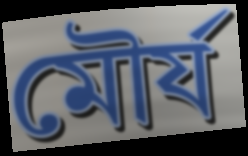
মৌৰ্য